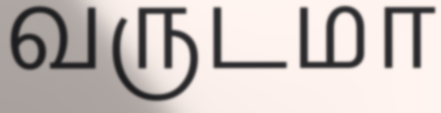
வருடமா